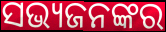
ସଭ୍ୟଜନଙ୍କର